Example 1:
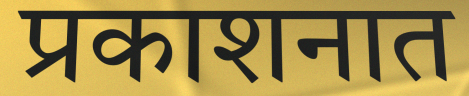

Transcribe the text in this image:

प्रकाशनात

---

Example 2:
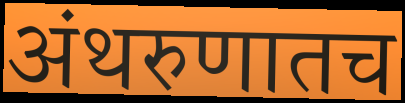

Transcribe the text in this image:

अंथरुणातच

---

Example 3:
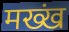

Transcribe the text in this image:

मख्खं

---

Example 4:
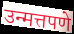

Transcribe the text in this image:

उन्मत्तपणे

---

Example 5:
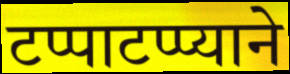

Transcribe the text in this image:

टप्पाटप्प्याने